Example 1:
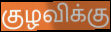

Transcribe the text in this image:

குழவிக்கு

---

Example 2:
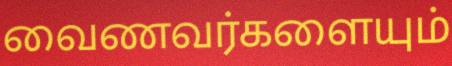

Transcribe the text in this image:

வைணவர்களையும்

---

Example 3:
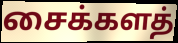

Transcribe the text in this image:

சைக்களத்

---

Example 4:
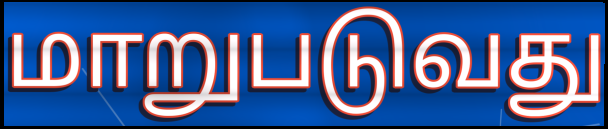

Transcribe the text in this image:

மாறுபடுவது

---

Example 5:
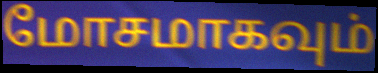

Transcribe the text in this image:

மோசமாகவும்